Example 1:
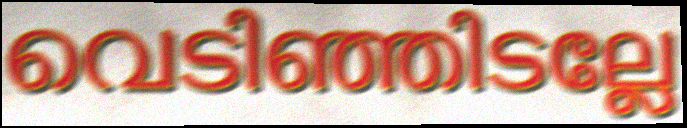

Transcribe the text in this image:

വെടിഞ്ഞിടല്ലേ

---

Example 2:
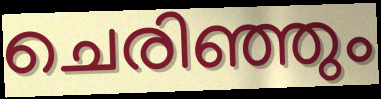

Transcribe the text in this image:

ചെരിഞ്ഞും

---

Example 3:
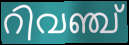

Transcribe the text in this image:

റിവഞ്ച്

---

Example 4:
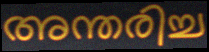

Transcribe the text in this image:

അന്തരിച്ച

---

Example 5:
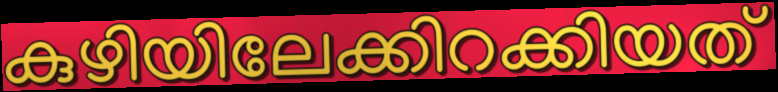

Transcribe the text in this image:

കുഴിയിലേക്കിറക്കിയത്